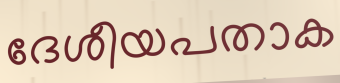
ദേശീയപതാക